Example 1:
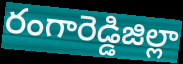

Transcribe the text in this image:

రంగారెడ్డిజిల్లా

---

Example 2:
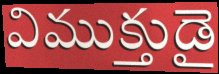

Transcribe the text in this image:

విముక్తుడై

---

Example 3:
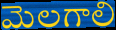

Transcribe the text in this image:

మెలగాలి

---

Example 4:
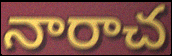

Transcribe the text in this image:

నారాచ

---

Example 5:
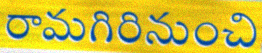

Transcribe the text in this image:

రామగిరినుంచి